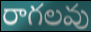
రాగలవు